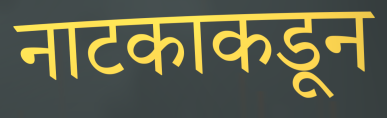
नाटकाकडून